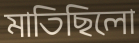
মাতিছিলো